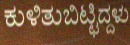
ಕುಳಿತುಬಿಟ್ಟಿದ್ದಳು